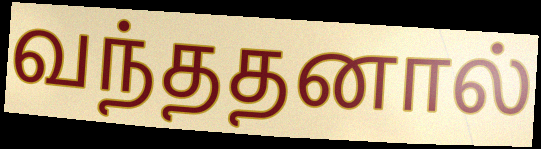
வந்ததனால்